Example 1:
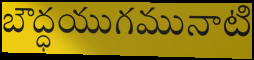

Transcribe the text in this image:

బౌద్ధయుగమునాటి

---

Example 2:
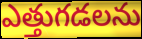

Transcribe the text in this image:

ఎత్తుగడలను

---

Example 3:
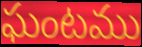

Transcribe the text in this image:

ఘంటము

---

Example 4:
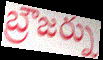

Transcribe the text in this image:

బ్రౌజర్ను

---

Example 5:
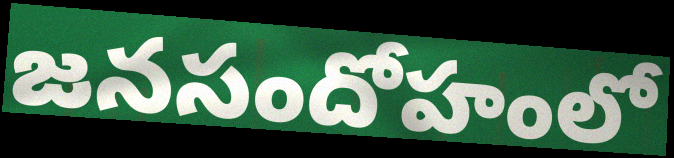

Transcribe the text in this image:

జనసందోహంలో